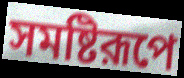
সমষ্টিরূপে